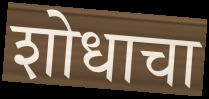
शोधाचा